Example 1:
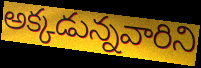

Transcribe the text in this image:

అక్కడున్నవారిని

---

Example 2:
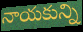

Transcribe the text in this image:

నాయకున్ని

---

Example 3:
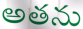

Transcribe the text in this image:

అతను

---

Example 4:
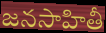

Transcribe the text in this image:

జనసాహితీ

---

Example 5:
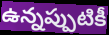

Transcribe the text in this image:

ఉన్నప్పుటికీ